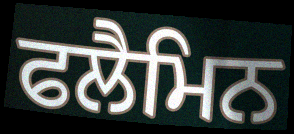
ਫਲੈਮਿਨ